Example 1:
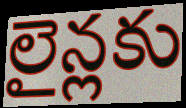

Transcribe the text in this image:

లైన్లకు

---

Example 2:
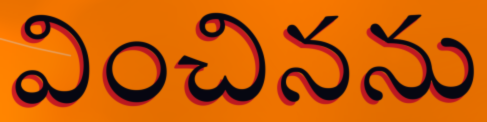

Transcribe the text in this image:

వించినను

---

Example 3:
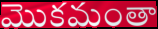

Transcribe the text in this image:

మొకమంతా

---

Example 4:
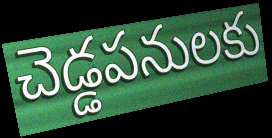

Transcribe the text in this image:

చెడ్డపనులకు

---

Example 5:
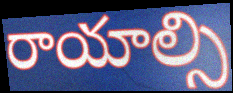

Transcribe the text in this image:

రాయాల్సి